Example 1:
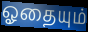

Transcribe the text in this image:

ஓதையும்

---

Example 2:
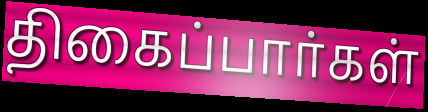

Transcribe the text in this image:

திகைப்பார்கள்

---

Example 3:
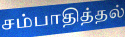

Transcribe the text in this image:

சம்பாதித்தல்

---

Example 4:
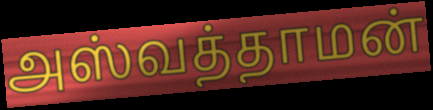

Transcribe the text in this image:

அஸ்வத்தாமன்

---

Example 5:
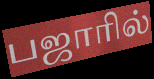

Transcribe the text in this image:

பஜாரில்